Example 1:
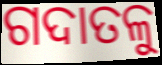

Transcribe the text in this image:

ଗଦାତଳୁ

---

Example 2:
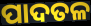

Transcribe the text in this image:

ପାଦତଳ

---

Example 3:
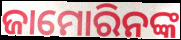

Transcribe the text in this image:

ଜାମୋରିନଙ୍କ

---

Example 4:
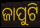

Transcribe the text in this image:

ଜାପୁଟି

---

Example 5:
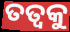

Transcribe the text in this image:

ତତ୍ୱକୁ